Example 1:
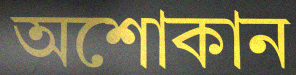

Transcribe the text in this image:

অশোকান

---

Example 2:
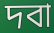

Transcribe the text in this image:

দবা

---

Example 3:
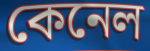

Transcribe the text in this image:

কেনেল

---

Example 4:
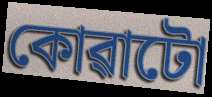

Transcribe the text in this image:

কোৱাটো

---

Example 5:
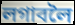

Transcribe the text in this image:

লগাবলৈ